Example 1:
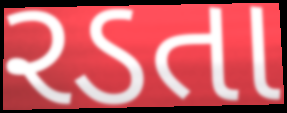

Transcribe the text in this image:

રડતા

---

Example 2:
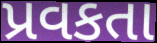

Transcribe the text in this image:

પ્રવકતા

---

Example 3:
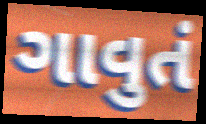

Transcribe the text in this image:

ગાવુતં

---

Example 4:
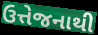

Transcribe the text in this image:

ઉત્તેજનાથી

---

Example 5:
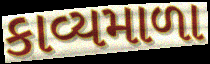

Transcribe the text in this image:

કાવ્યમાળા